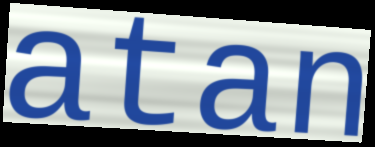
atan